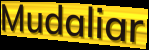
Mudaliar